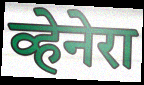
व्हेनेरा